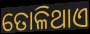
ତୋଳିଥାଏ